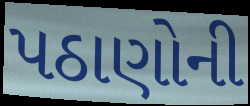
પઠાણોની